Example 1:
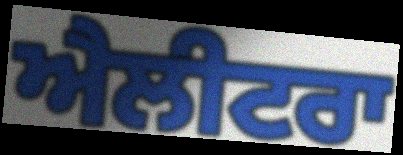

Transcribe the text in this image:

ਐਲੀਟਰਾ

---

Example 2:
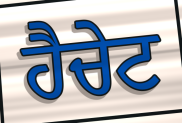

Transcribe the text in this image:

ਹੈਚੇਟ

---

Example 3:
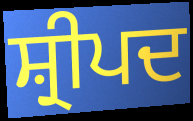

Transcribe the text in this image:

ਸ਼੍ਰੀਪਦ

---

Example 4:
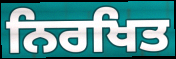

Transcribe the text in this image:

ਨਿਰਖਿਤ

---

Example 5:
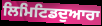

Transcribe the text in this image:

ਲਿਮਿਟਿਡਦੁਆਰਾ